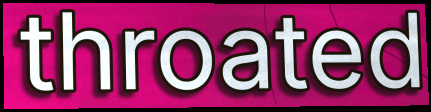
throated